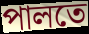
পালতে